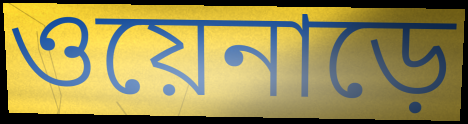
ওয়েনাড়ে